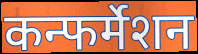
कन्फर्मेशन